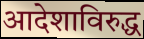
आदेशाविरुद्ध